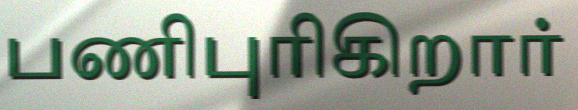
பணிபுரிகிறார்